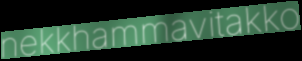
nekkhammavitakko